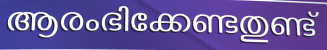
ആരംഭിക്കേണ്ടതുണ്ട്